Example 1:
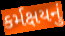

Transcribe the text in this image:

કર્મક્ષયનું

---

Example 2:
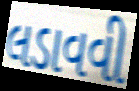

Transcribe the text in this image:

લડાવવી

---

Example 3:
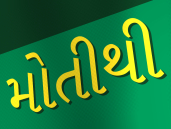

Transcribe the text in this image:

મોતીથી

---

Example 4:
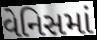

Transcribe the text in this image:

વેનિસમાં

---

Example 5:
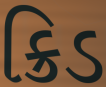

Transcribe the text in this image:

ક્રિડ